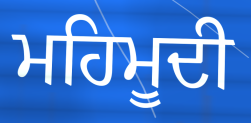
ਮਹਿਮੂਦੀ